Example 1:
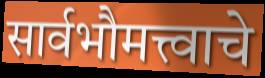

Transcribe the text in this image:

सार्वभौमत्त्वाचे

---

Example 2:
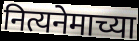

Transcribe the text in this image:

नित्यनेमाच्या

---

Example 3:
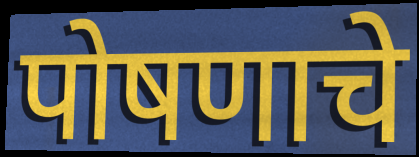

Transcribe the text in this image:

पोषणाचे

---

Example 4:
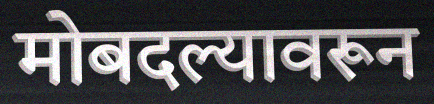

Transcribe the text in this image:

मोबदल्यावरून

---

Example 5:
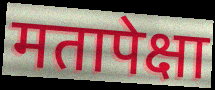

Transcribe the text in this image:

मतापेक्षा